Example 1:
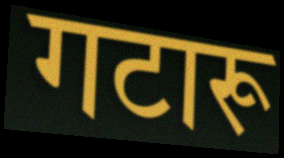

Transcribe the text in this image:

गटारू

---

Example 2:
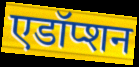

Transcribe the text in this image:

एडॉप्शन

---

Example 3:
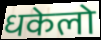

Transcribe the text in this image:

धकेलो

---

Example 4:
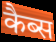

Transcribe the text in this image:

कैब्स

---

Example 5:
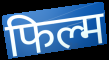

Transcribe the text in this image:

फिल्‍म